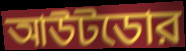
আউটডোর